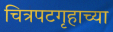
चित्रपटगृहाच्या